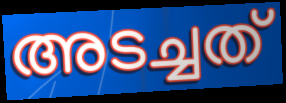
അടച്ചത്